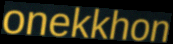
onekkhon